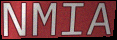
NMIA